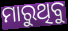
ମାରୁଥିବୁ